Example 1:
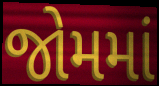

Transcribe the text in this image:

જોમમાં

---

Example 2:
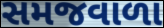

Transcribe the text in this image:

સમજવાળા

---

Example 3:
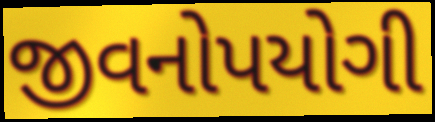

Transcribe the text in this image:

જીવનોપયોગી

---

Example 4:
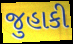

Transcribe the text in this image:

જુહાકી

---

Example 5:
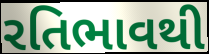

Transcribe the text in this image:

રતિભાવથી